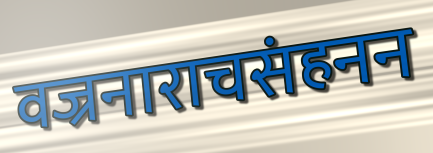
वज्रनाराचसंहनन